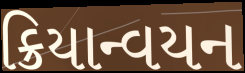
ક્રિયાન્વયન